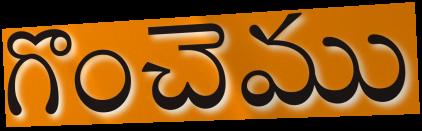
గొంచెము